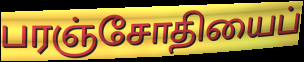
பரஞ்சோதியைப்